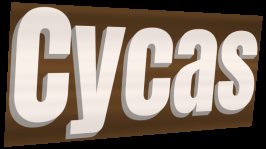
Cycas